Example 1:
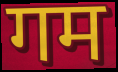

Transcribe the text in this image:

गम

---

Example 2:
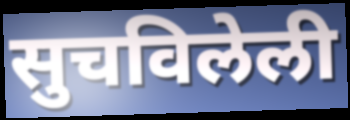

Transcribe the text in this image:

सुचविलेली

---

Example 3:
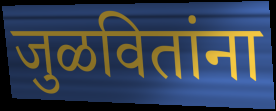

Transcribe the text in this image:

जुळवितांना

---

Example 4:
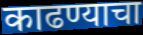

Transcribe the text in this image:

काढण्याचा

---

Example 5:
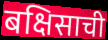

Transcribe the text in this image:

बक्षिसाची